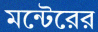
মন্টেরের